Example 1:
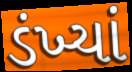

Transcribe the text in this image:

ડંખ્યાં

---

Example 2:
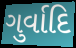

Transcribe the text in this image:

ગુર્વાદિ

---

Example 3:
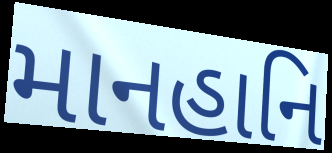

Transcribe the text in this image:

માનહાનિ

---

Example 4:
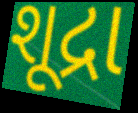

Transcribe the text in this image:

શૂદ્રા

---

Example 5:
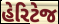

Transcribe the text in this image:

હેરિટેજ